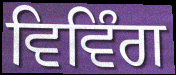
ਵਿਵਿੰਗ